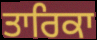
ਤਾਰਿਕਾ